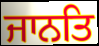
ਜਾਨਤਿ